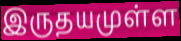
இருதயமுள்ள